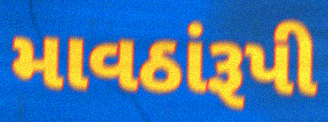
માવઠાંરૂપી